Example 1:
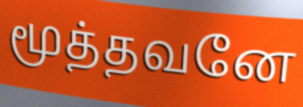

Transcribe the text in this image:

மூத்தவனே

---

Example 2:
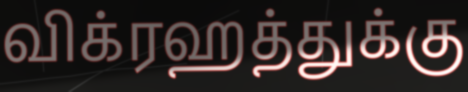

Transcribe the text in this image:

விக்ரஹத்துக்கு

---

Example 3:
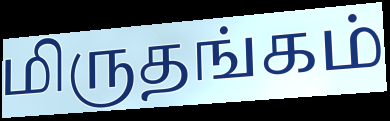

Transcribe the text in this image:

மிருதங்கம்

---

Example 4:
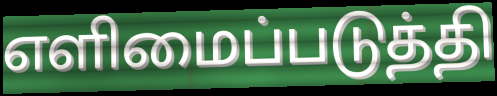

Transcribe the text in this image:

எளிமைப்படுத்தி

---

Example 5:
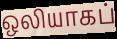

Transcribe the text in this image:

ஒலியாகப்